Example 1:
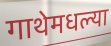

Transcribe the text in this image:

गाथेमधल्या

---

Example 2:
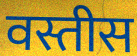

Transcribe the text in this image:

वस्तीस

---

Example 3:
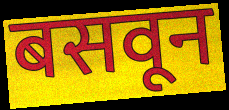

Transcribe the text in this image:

बसवून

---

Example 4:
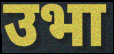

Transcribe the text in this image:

उभा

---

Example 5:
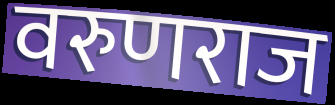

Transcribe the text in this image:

वरुणराज